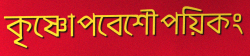
কৃষ্ণোপবেশৌপয়িকং